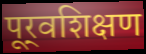
पूर्वशिक्षण